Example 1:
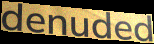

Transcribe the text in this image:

denuded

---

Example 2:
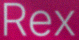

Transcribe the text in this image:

Rex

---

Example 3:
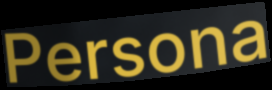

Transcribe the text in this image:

Persona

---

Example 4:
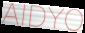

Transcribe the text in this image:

AIDYO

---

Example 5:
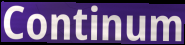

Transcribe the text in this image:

Continum